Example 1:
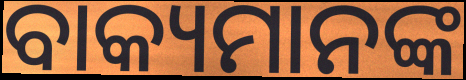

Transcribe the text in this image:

ବାକ୍ୟମାନଙ୍କ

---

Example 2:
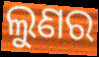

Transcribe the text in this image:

ଲୁଣର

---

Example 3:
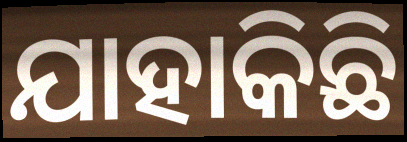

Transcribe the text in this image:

ଯାହାକିଛି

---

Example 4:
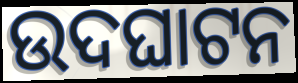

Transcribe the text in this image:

ଉଦଘାଟନ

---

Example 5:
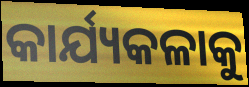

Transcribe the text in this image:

କାର୍ଯ୍ୟକଳାକୁ